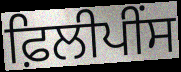
ਫ਼ਿਲੀਪੀਂਸ